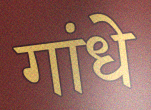
गांधे